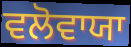
ਵਲੋਵਾਯਾ